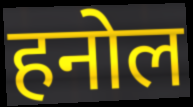
हनोल